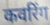
कवरिंग